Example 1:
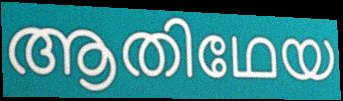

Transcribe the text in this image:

ആതിഥേയ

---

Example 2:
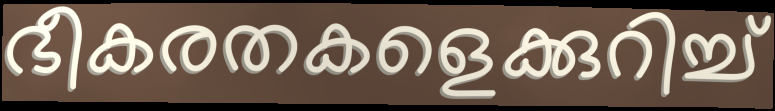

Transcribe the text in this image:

ഭീകരതകളെക്കുറിച്ച്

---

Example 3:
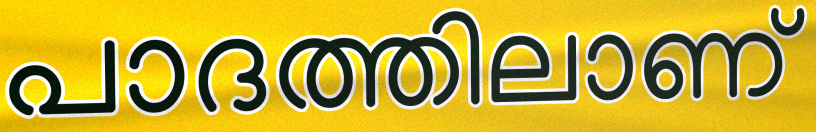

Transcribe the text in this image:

പാദത്തിലാണ്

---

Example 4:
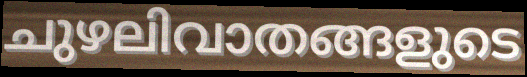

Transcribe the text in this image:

ചുഴലിവാതങ്ങളുടെ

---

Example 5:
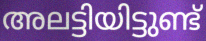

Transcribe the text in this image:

അലട്ടിയിട്ടുണ്ട്